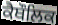
ਕੈਥੌਲਿਕ